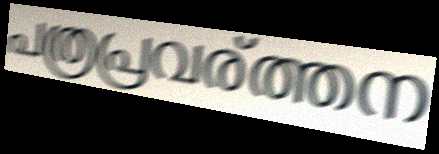
പത്രപ്രവര്ത്തന